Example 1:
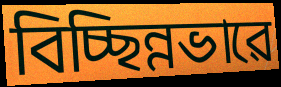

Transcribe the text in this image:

বিচ্ছিন্নভাৱে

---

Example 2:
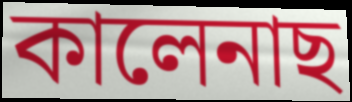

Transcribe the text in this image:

কালেনাছ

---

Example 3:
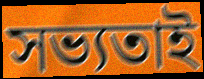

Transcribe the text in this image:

সভ্যতাই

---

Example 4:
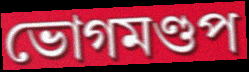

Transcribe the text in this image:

ভোগমণ্ডপ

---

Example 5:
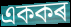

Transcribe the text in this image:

এককৰ